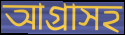
আগ্রাসহ